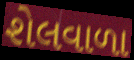
શેલવાળા